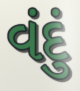
વંદું